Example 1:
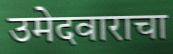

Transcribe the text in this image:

उमेदवाराचा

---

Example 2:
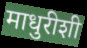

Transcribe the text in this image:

माधुरीशी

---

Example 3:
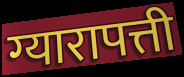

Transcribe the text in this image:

ग्यारापत्ती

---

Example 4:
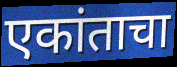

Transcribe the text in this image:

एकांताचा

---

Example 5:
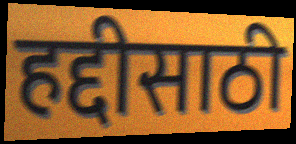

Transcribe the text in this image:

हद्दीसाठी